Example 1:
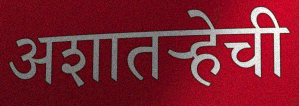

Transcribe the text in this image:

अशातऱ्हेची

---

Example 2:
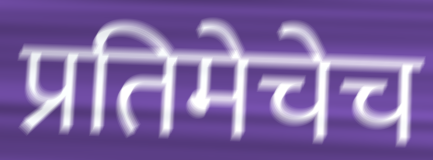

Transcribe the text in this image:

प्रतिमेचेच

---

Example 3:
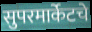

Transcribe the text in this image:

सुपरमार्केटचे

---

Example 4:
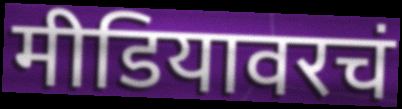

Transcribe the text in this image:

मीडियावरचं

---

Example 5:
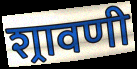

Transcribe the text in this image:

श्रावणी